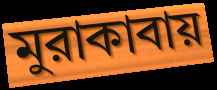
মুরাকাবায়